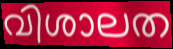
വിശാലത